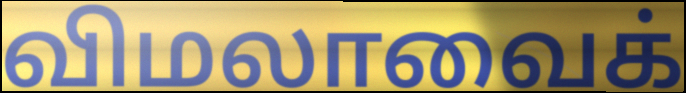
விமலாவைக்